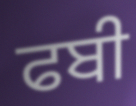
ਫਬੀ